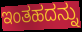
ಇಂತಹದನ್ನು